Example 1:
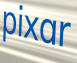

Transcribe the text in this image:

pixar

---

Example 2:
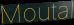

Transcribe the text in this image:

Moutal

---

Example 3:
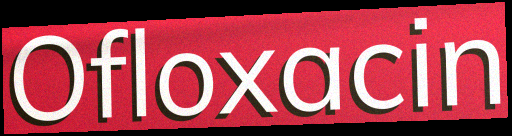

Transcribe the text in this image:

Ofloxacin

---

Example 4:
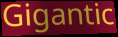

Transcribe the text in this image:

Gigantic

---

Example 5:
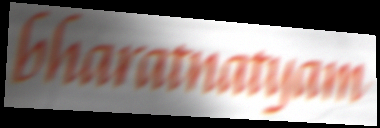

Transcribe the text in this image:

bharatnatyam